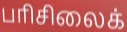
பரிசிலைக்